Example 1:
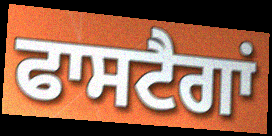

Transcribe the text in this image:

ਫਾਸਟੈਗਾਂ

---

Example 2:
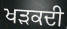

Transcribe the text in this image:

ਖੜਕਦੀ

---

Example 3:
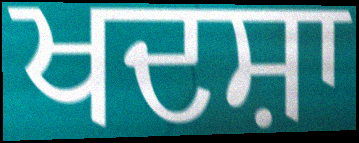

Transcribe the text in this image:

ਖਦਸ਼ਾ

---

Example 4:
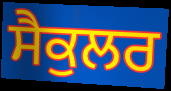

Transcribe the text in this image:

ਸੈਕੁਲਰ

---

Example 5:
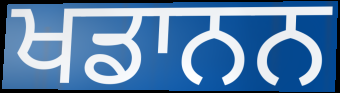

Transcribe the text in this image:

ਖਡਾਨਨ